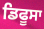
ਡਿਫੂਸਾ